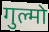
गुल्मो